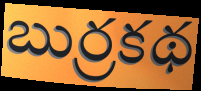
బుర్రకథ